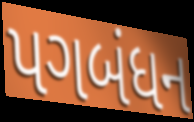
પગબંધન